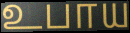
உபாய